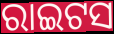
ରାଇଟସ